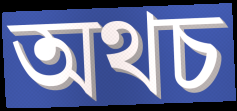
অথচ